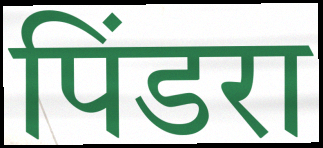
पिंडरा